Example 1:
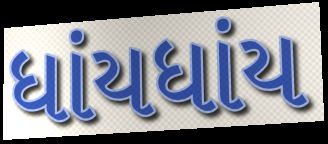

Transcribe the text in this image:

ધાંયધાંય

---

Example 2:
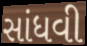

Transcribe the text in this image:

સાંધવી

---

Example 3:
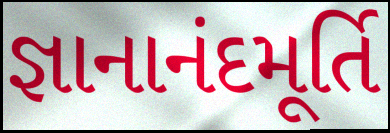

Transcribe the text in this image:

જ્ઞાનાનંદમૂર્તિ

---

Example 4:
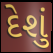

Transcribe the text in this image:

દેશું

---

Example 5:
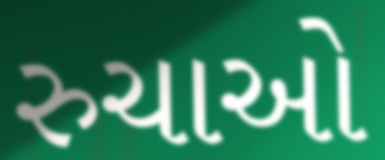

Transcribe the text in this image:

રુચાઓ